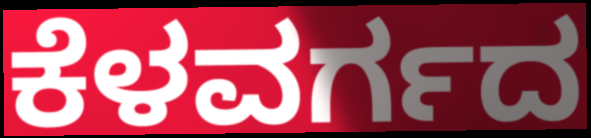
ಕೆಳವರ್ಗದ